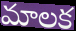
మాలక